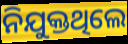
ନିଯୁକ୍ତଥିଲେ